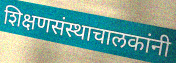
शिक्षणसंस्थाचालकांनी